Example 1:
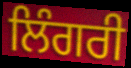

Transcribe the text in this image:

ਲਿੰਗਰੀ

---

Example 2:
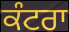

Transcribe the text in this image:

ਕੰਟਰਾ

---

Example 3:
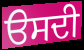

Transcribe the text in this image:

ੳਸਦੀ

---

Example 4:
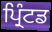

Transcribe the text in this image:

ਪ੍ਰਿੰਟਡ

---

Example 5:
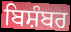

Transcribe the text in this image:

ਬਿਸ਼ੰਬਰ